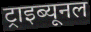
ट्राइब्यूनल